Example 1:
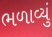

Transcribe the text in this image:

ભળાવ્યું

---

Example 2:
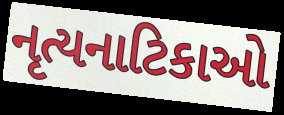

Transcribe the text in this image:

નૃત્યનાટિકાઓ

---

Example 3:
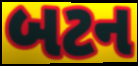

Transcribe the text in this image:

બટન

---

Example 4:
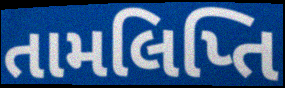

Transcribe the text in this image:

તામલિપ્તિ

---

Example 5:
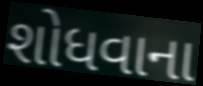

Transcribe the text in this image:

શોધવાના